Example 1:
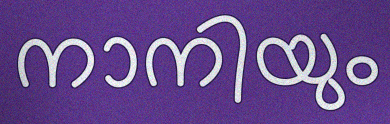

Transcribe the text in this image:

നാനിയും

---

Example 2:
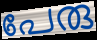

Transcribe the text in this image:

പേരു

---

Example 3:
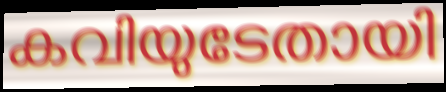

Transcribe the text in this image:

കവിയുടേതായി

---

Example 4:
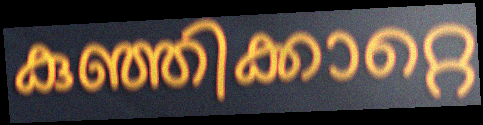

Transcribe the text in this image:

കുഞ്ഞിക്കാറ്റെ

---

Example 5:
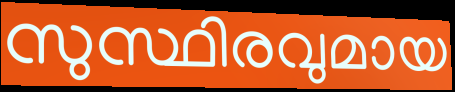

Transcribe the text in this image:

സുസ്ഥിരവുമായ